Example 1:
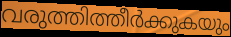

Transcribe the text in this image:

വരുത്തിത്തീർക്കുകയും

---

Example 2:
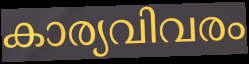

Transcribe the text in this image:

കാര്യവിവരം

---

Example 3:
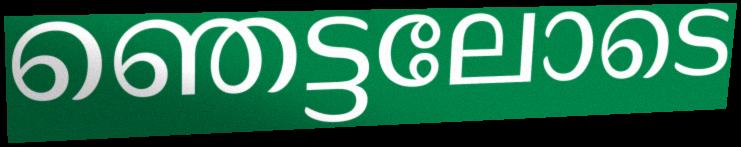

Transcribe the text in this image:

ഞെട്ടലോടെ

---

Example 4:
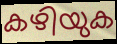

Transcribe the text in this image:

കഴിയുക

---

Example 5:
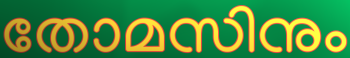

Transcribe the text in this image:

തോമസിനും